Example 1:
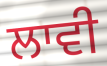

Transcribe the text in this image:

ਲਾਵੀ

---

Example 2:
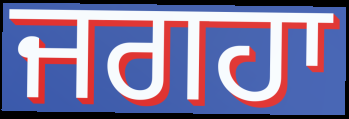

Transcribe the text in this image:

ਜਗਹਾ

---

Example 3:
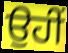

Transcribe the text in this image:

ਉਹੀਂ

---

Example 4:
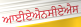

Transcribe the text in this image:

ਆਈਏਐਨਸੀਏਐਸ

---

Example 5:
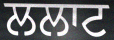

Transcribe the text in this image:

ਲਲਾਟ